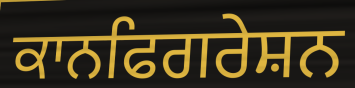
ਕਾਨਫਿਗਰੇਸ਼ਨ